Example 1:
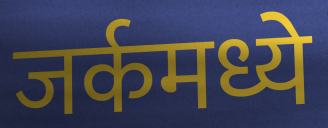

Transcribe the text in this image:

जर्कमध्ये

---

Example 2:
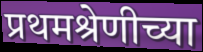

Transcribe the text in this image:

प्रथमश्रेणीच्या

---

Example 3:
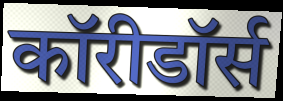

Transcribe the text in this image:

कॉरीडॉर्स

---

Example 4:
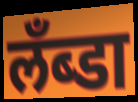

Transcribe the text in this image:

लँब्डा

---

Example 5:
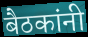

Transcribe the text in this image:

बैठकांनी